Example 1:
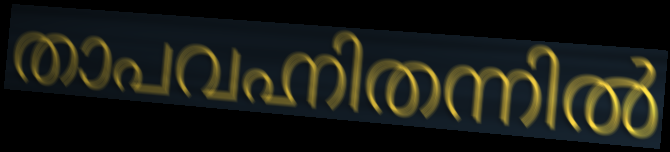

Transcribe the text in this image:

താപവഹ്നിതന്നിൽ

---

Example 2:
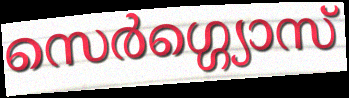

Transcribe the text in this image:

സെർഗ്ഗ്യൊസ്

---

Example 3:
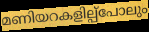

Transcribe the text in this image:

മണിയറകളില്പ്പോലും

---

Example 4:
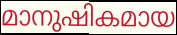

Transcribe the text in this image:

മാനുഷികമായ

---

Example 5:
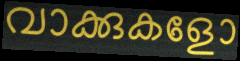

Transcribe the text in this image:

വാക്കുകളോ